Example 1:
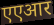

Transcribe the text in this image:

एएआर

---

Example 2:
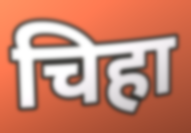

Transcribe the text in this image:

चिहा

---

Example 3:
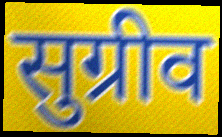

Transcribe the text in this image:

सुग्रीव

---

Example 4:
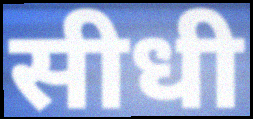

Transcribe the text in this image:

सीधी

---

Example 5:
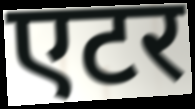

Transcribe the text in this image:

एटर